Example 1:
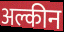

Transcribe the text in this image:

अल्कीन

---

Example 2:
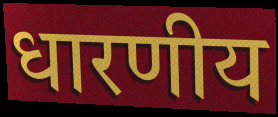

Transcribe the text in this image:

धारणीय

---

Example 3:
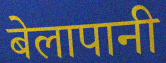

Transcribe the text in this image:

बेलापानी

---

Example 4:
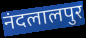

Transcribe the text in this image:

नंदलालपुर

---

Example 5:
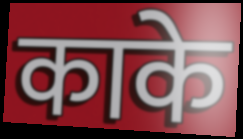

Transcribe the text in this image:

काके